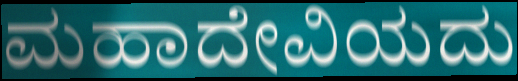
ಮಹಾದೇವಿಯದು